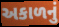
અકાળનું